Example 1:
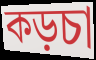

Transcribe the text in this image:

কড়চা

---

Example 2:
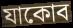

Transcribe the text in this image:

যাকোব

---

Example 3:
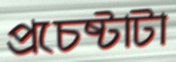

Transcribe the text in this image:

প্রচেষ্টাটা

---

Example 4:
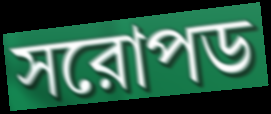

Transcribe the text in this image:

সরোপড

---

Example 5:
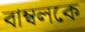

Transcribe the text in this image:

বাম্বলকে